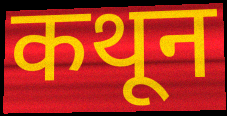
कथून